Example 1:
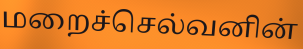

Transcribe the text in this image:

மறைச்செல்வனின்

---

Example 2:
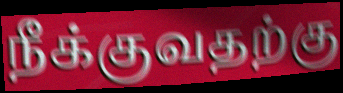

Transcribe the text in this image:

நீக்குவதற்கு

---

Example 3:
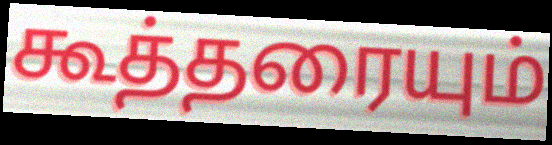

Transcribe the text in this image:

கூத்தரையும்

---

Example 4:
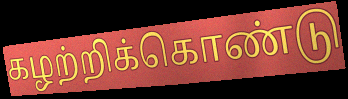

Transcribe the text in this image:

கழற்றிக்கொண்டு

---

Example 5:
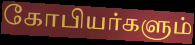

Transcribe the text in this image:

கோபியர்களும்